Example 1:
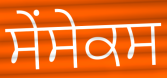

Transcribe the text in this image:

ਸੇਂਸੇਕਸ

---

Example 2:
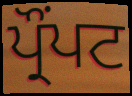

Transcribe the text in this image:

ਪ੍ਰੌੰਪਟ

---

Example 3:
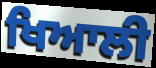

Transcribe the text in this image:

ਖਿਆਲੀ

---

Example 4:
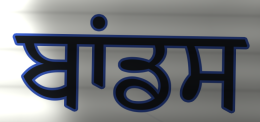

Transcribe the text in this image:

ਬਾਂਡਸ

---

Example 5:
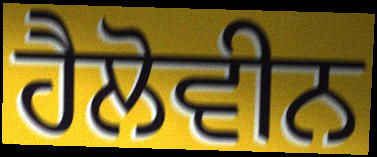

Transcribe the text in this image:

ਹੈਲੋਵੀਨ